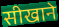
सीखाने